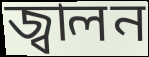
জ্বালন